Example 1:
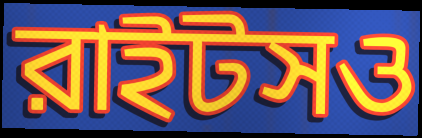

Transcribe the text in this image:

রাইটসও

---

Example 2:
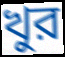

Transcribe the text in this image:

খুর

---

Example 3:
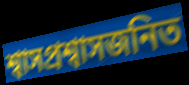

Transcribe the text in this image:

শ্বাসপ্রশ্বাসজনিত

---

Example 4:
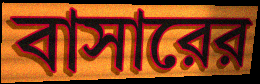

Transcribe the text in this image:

বাসারের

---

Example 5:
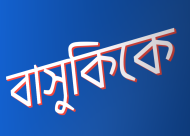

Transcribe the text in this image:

বাসুকিকে